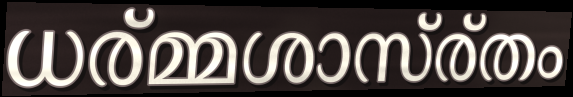
ധര്മ്മശാസ്ര്തം